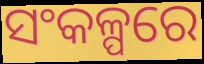
ସଂକଳ୍ପରେ